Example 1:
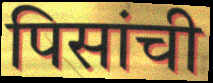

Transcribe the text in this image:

पिसांची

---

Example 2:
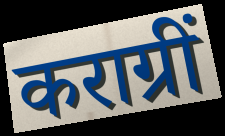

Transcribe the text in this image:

कराग्रीं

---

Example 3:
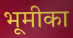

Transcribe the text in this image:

भूमीका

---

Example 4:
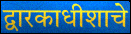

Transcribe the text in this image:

द्वारकाधीशाचे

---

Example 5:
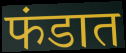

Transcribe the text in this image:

फंडात